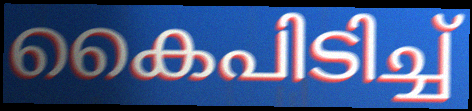
കൈപിടിച്ച്